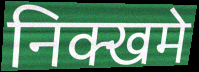
निक्खमे